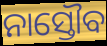
ନାସ୍ତୌବ